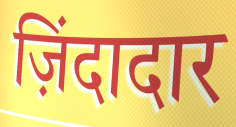
ज़िंदादार